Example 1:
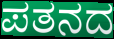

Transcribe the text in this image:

ಪತನದ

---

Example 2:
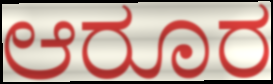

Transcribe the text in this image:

ಆರೂರ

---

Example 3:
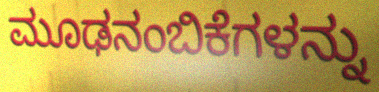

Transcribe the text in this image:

ಮೂಢನಂಬಿಕೆಗಳನ್ನು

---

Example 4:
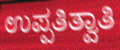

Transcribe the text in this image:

ಉಪ್ಪತಿತ್ವಾತಿ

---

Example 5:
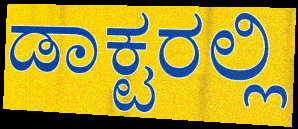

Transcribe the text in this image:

ಡಾಕ್ಟರಲ್ಲಿ